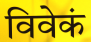
विवेकं